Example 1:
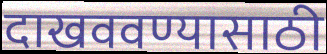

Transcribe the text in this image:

दाखववण्यासाठी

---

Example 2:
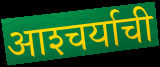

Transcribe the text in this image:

आश्‍चर्याची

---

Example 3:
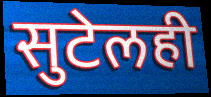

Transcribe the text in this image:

सुटेलही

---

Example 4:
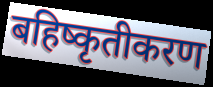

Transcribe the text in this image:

बहिष्कृतीकरण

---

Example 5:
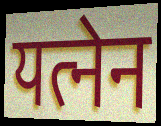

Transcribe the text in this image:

यत्‍नेन